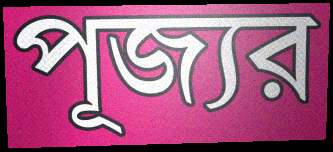
পূজ্যর